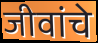
जीवांचे